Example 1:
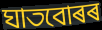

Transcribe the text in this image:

ঘাতবোৰৰ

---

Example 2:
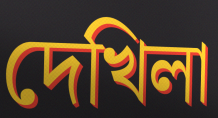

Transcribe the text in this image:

দেখিলা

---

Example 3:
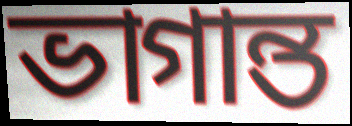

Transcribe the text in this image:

ভাগান্ত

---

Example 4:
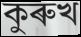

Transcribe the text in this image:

কুৰুখ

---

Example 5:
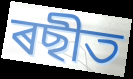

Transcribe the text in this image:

ৰছীত